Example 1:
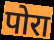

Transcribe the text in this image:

पोरा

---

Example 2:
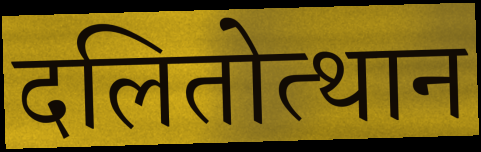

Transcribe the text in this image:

दलितोत्थान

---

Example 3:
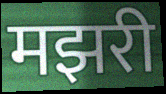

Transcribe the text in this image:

मझरी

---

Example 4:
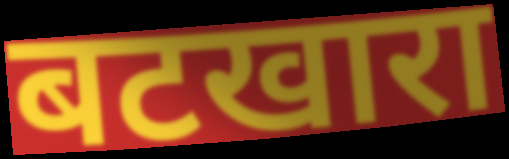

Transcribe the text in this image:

बटखारा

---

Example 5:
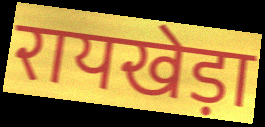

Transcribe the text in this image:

रायखेड़ा